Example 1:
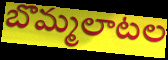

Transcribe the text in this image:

బొమ్మలాటల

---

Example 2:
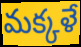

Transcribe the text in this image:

మక్కళే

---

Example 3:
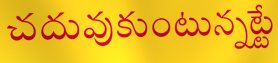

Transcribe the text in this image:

చదువుకుంటున్నట్టే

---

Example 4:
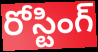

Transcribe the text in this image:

రోస్టింగ్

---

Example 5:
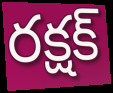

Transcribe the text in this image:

రక్షక్